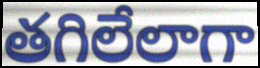
తగిలేలాగా